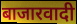
बाजारवादी